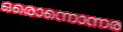
ഒരൊന്നൊന്നര